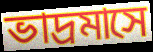
ভাদ্রমাসে